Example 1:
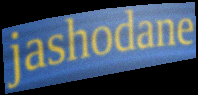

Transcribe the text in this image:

jashodane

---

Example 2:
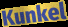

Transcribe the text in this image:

Kunkel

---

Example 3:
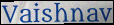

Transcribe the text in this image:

Vaishnav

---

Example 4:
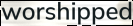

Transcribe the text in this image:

worshipped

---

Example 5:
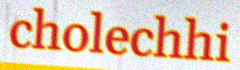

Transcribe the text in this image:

cholechhi